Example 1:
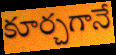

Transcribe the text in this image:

కూర్చగానే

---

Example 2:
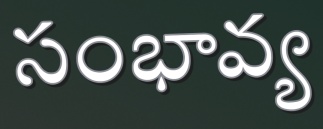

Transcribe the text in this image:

సంభావ్య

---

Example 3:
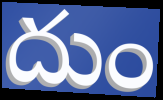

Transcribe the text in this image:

దుం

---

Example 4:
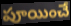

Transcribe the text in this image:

పూయించే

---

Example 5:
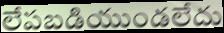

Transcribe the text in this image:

లేపబడియుండలేదు